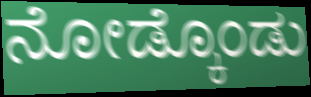
ನೋಡ್ಕೊಂಡು